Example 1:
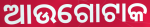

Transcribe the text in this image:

ଆଉଗୋଟାକ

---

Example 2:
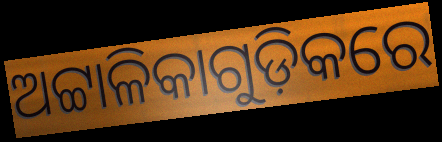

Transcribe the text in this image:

ଅଟ୍ଟାଳିକାଗୁଡ଼ିକରେ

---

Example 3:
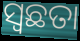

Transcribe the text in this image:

ସ୍ବଛତା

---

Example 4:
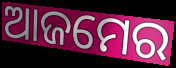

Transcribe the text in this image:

ଆଜମେର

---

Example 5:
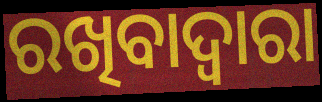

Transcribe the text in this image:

ରଖିବାଦ୍ୱାରା